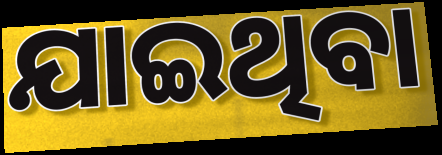
ଯାଇଥିବା